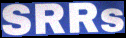
SRRs